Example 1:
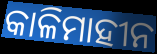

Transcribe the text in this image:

କାଳିମାହୀନ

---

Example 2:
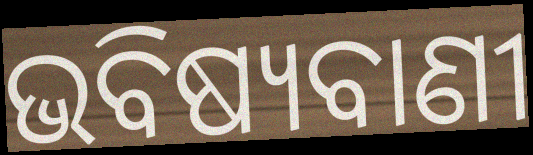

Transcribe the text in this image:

ଭବିଷ୍ଯବାଣୀ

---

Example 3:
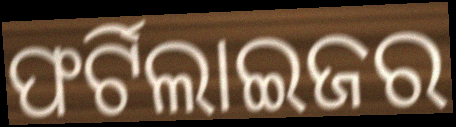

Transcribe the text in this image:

ଫର୍ଟିଲାଇଜର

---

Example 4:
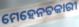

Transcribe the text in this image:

ମେହେନତକାରୀ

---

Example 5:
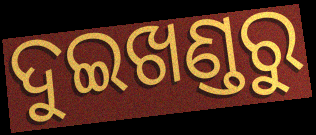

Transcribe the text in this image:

ଦୁଇଖଣ୍ଡରୁ